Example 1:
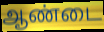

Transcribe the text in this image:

ஆண்டை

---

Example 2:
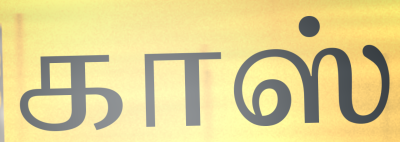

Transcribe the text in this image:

காஸ்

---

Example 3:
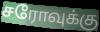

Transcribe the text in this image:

சரோவுக்கு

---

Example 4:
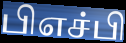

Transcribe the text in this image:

பிஎச்பி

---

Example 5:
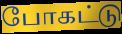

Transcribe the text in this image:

போகட்டு